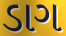
ડાગ